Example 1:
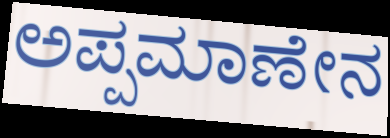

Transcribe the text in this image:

ಅಪ್ಪಮಾಣೇನ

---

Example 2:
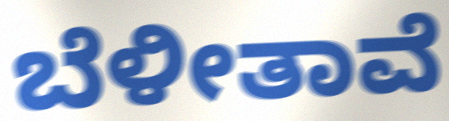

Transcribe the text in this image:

ಬೆಳೀತಾವೆ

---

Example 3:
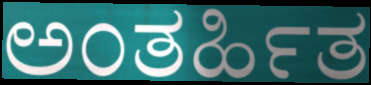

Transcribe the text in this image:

ಅಂತರ್ಹಿತ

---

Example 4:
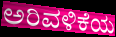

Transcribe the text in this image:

ಅರಿವಳಿಕೆಯ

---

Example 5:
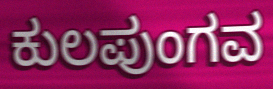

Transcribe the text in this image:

ಕುಲಪುಂಗವ